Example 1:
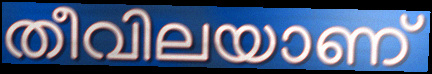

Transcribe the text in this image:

തീവിലയാണ്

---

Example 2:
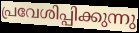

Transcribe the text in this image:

പ്രവേശിപ്പിക്കുന്നു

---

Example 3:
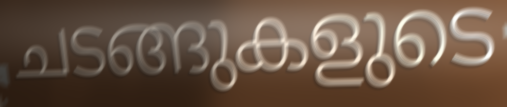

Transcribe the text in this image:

ചടങ്ങുകളുടെ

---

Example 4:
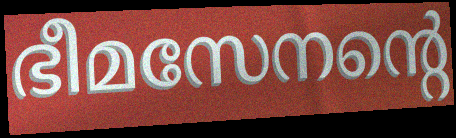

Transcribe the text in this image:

ഭീമസേനന്റെ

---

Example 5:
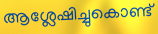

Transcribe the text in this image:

ആശ്ലേഷിച്ചുകൊണ്ട്